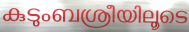
കുടുംബശ്രീയിലൂടെ